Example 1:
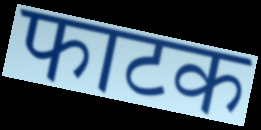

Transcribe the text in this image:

फाटक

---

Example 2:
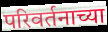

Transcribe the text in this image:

परिवर्तनाच्या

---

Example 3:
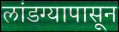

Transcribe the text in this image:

लांडग्यापासून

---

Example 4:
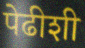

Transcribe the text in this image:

पेढीशी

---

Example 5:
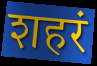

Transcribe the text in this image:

शहरं